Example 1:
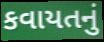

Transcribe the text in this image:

કવાયતનું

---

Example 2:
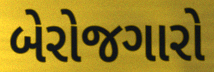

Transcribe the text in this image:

બેરોજગારો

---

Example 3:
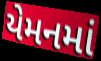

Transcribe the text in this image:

યેમનમાં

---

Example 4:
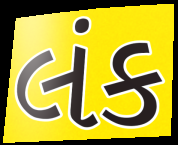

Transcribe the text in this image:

લંક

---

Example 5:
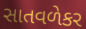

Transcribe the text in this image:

સાતવળેકર